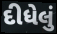
દીધેલું